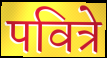
पवित्रे